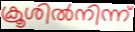
ക്രൂശിൽനിന്ന്